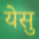
येसु